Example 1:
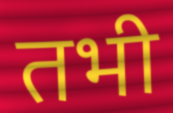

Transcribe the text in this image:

तभी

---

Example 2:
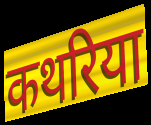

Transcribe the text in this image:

कथरिया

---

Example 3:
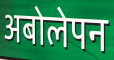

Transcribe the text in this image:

अबोलेपन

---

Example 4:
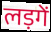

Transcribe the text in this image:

लड़गें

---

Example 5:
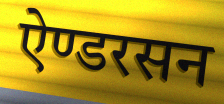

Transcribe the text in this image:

ऐण्डरसन